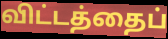
விட்டத்தைப்